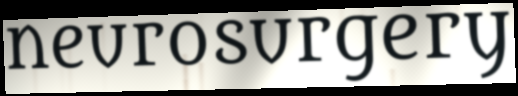
neurosurgery